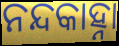
ନନ୍ଦକାହ୍ନା